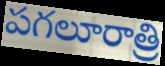
పగలూరాత్రి